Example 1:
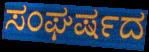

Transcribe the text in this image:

ಸಂಘರ್ಷದ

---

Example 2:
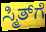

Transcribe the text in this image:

ಸ್ಮಿತ್‌ಗೆ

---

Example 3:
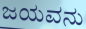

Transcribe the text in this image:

ಜಯವನು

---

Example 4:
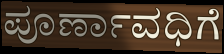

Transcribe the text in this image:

ಪೂರ್ಣಾವಧಿಗೆ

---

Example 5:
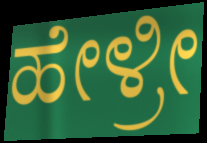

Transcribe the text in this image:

ಹೇಳ್ರೀ